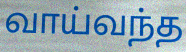
வாய்வந்த